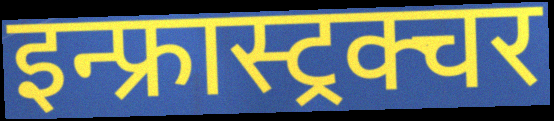
इन्फ्रास्ट्रक्चर